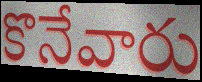
కొనేవారు